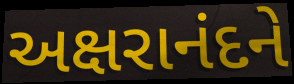
અક્ષરાનંદને